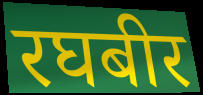
रघबीर